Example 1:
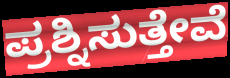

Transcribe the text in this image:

ಪ್ರಶ್ನಿಸುತ್ತೇವೆ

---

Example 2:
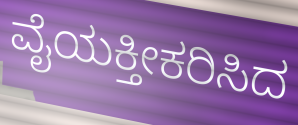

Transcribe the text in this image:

ವೈಯಕ್ತೀಕರಿಸಿದ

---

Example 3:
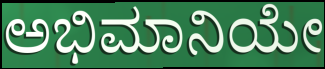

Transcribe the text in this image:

ಅಭಿಮಾನಿಯೇ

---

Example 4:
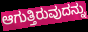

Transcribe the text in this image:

ಆಗುತ್ತಿರುವುದನ್ನು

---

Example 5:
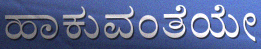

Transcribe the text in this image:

ಹಾಕುವಂತೆಯೇ